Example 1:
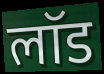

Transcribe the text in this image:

लॉड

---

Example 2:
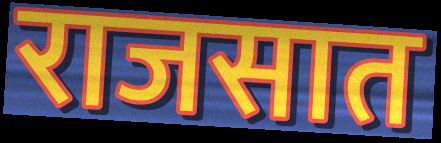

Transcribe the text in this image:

राजसात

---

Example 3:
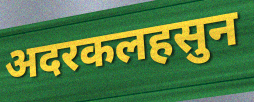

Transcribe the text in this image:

अदरकलहसुन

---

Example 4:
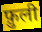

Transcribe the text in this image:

फ़ुली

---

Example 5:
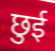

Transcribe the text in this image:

छुई